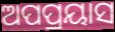
ଅପପ୍ରୟାସ